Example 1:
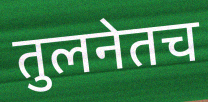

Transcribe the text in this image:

तुलनेतच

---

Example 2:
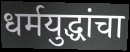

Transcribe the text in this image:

धर्मयुद्धांचा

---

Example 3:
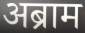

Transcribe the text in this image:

अब्राम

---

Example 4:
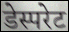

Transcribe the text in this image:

डेस्परेट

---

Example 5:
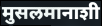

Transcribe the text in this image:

मुसलमानाशी